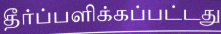
தீர்ப்பளிக்கப்பட்டது